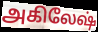
அகிலேஷ்